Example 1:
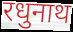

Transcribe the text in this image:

रधुनाथ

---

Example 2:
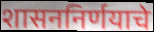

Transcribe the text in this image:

शासननिर्णयाचे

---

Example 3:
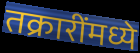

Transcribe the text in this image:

तक्रारींमध्ये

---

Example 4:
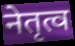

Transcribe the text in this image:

नेतृत्‍व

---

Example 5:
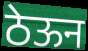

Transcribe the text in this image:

ठेऊन